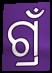
ଗ୍ରଁ